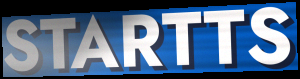
STARTTS